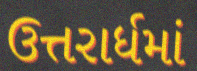
ઉત્તરાર્ધમાં